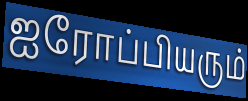
ஐரோப்பியரும்